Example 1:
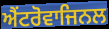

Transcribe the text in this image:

ਐਂਟਰੋਵਾਜਿਨਲ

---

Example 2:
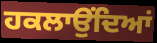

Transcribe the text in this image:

ਹਕਲਾਉਂਦਿਆਂ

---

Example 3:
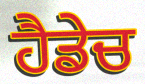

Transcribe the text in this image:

ਹੈਡੇਚ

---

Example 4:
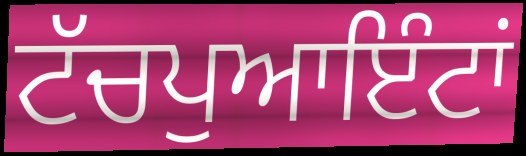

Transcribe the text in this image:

ਟੱਚਪੁਆਇੰਟਾਂ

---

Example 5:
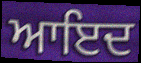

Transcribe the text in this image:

ਆਇਦ